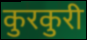
कुरकुरी